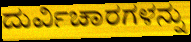
ದುರ್ವಿಚಾರಗಳನ್ನು